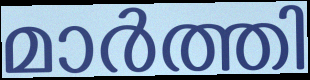
മാർത്തി